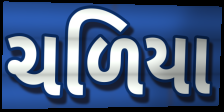
ચળિયા